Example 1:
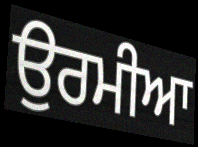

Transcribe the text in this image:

ਉਰਮੀਆ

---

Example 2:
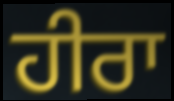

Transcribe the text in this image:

ਹੀਰਾ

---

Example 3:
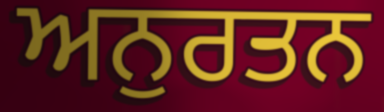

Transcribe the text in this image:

ਅਨੁਰਤਨ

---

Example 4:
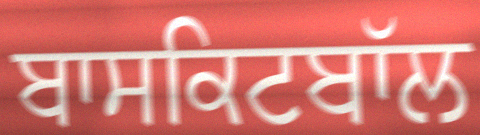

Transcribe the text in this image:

ਬਾਸਕਿਟਬਾੱਲ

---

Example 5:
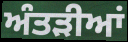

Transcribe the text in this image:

ਅੰਤੜੀਆਂ